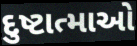
દુષ્ટાત્માઓ